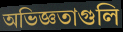
অভিজ্ঞতাগুলি